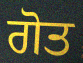
ਗੋਤ